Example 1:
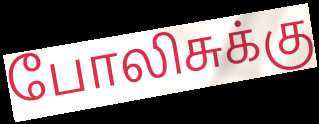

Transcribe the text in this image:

போலிசுக்கு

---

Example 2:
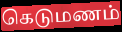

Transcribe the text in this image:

கெடுமணம்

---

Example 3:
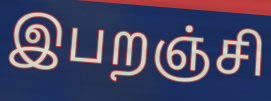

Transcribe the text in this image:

இபறஞ்சி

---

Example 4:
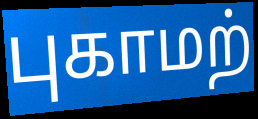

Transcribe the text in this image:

புகாமற்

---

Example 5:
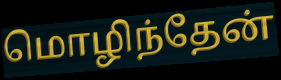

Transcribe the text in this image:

மொழிந்தேன்